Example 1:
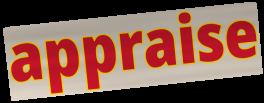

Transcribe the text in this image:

appraise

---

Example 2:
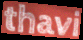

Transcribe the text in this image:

thavi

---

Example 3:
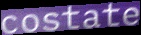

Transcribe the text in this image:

costate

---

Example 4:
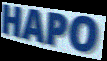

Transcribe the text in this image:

HAPO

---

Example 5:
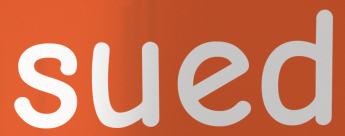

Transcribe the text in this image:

sued